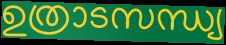
ഉത്രാടസന്ധ്യ